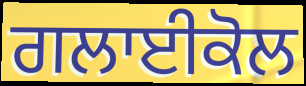
ਗਲਾਈਕੋਲ